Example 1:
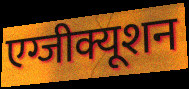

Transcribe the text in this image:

एग्जीक्यूशन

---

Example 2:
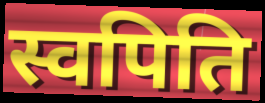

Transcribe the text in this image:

स्वपिति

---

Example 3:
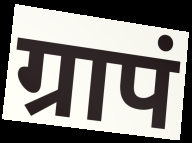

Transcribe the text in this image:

ग्रापं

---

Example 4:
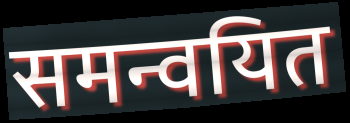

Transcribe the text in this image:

समन्वयित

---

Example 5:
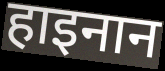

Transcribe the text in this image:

हाइनान